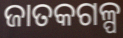
ଜାତକଗଳ୍ପ